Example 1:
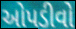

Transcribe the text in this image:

ઓપડીવો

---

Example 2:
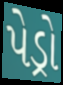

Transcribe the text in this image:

પેડ્રો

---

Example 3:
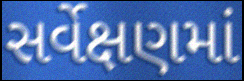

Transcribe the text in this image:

સર્વેક્ષણમાં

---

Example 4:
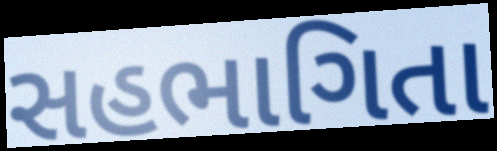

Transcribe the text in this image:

સહભાગિતા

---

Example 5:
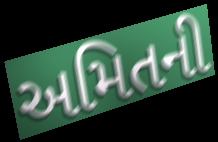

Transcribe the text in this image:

અમિતની